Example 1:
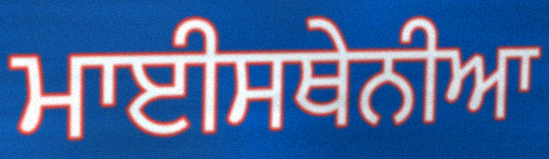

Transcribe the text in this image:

ਮਾਈਸਥੇਨੀਆ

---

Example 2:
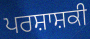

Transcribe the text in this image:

ਪਰਸ਼ਾਸ਼ਕੀ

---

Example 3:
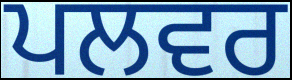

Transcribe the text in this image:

ਪਲਵਰ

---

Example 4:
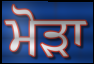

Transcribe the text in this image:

ਮੋੜਾ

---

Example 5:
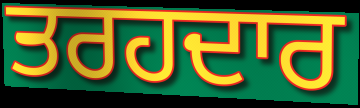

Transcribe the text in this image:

ਤਰਹਦਾਰ